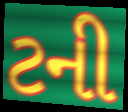
ટની